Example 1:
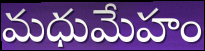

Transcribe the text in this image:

మధుమేహం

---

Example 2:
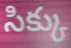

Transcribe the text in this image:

సిక్కు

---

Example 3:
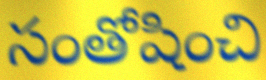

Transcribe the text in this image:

సంతోషించి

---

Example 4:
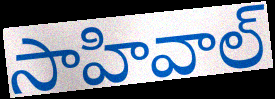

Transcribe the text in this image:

సాహివాల్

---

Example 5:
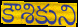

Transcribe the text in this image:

కౌశికుని